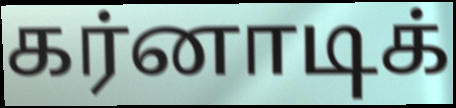
கர்னாடிக்